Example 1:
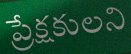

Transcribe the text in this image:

ప్రేక్షకులని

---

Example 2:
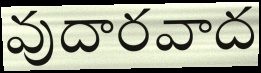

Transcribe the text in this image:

వుదారవాద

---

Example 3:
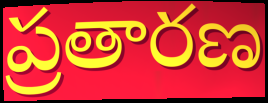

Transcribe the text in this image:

ప్రతారణ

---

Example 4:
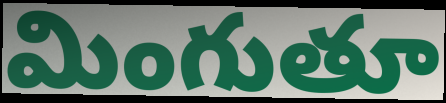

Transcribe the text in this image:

మింగుతూ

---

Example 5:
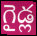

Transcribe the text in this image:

గైడ్ల